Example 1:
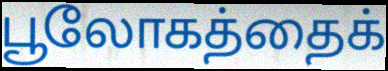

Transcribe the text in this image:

பூலோகத்தைக்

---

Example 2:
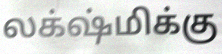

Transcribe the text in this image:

லக்‌ஷ்மிக்கு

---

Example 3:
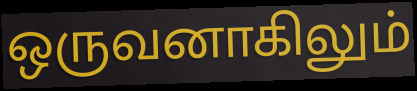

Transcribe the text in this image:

ஒருவனாகிலும்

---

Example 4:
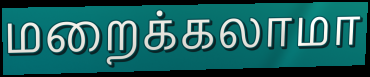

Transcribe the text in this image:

மறைக்கலாமா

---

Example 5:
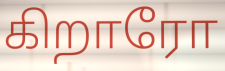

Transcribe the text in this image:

கிறாரோ